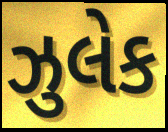
ઝુલેક